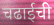
चढाईची